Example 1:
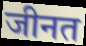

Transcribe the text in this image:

जीनत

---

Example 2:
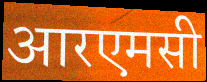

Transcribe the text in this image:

आरएमसी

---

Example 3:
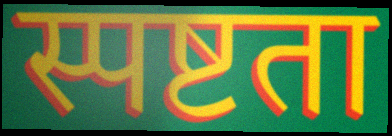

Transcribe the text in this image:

स्पष्टता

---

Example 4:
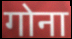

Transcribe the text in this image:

गोना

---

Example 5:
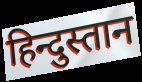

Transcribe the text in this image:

हिन्दुस्तान